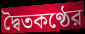
দ্বৈতকণ্ঠের